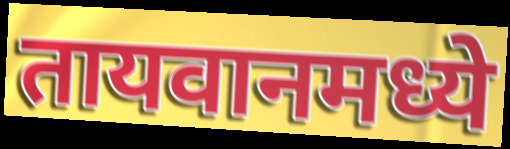
तायवानमध्ये